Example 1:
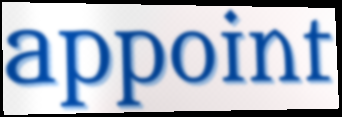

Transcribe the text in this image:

appoint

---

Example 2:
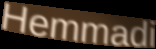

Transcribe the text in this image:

Hemmadi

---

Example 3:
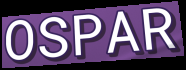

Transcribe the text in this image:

OSPAR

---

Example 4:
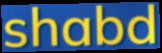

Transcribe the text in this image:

shabd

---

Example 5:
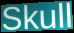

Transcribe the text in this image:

Skull